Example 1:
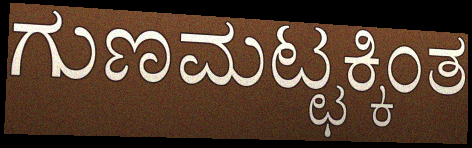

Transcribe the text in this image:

ಗುಣಮಟ್ಟಕ್ಕಿಂತ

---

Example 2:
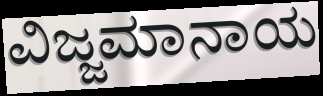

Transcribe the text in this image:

ವಿಜ್ಜಮಾನಾಯ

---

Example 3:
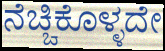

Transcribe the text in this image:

ನೆಚ್ಚಿಕೊಳ್ಳದೇ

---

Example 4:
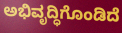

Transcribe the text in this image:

ಅಭಿವೃದ್ಧಿಗೊಂಡಿದೆ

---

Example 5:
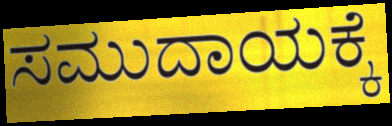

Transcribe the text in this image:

ಸಮುದಾಯಕ್ಕೆ